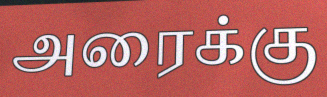
அரைக்கு